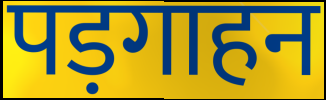
पड़गाहन